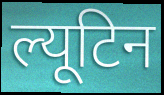
ल्यूटिन